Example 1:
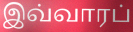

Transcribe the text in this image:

இவ்வாரப்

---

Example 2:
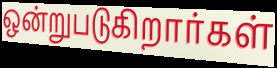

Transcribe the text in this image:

ஒன்றுபடுகிறார்கள்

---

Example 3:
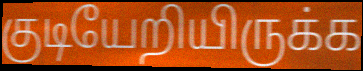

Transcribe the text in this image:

குடியேறியிருக்க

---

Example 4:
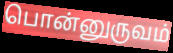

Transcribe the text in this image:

பொன்னுருவம்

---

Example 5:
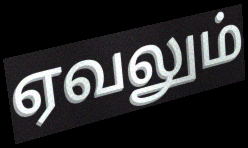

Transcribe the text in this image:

ஏவலும்